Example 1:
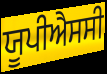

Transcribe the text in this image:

ਯੂਪੀਐਸਸੀ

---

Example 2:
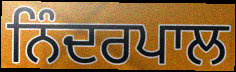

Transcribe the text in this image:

ਨਿੰਦਰਪਾਲ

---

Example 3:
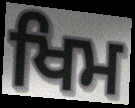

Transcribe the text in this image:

ਖਿਮ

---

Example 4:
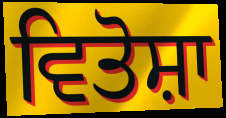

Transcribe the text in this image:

ਵਿਤੋਸ਼ਾ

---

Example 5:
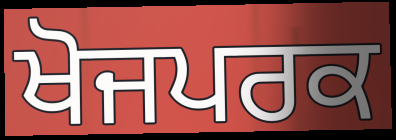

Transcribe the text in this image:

ਖੋਜਪਰਕ